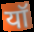
यॉ